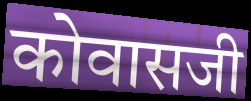
कोवासजी